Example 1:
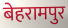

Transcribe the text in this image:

बेहरामपुर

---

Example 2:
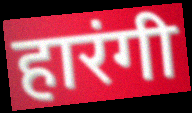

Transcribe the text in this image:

हारंगी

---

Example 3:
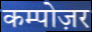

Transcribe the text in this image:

कम्पोज़र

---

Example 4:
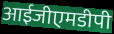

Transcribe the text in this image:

आईजीएमडीपी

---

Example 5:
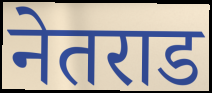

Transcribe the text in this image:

नेतराड